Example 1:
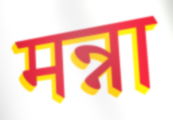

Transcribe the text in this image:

मन्ना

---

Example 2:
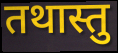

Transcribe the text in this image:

तथास्तु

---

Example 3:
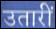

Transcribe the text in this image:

उतारीं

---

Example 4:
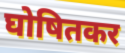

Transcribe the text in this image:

घोषितकर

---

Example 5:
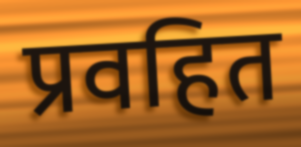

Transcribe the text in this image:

प्रवहित